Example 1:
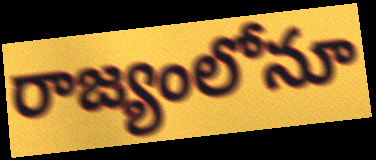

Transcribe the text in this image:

రాజ్యంలోనూ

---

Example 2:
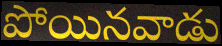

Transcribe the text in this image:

పోయినవాడు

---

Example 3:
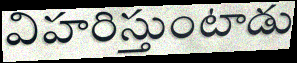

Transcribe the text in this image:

విహరిస్తుంటాడు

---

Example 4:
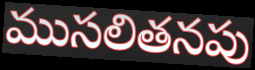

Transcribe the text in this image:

ముసలితనపు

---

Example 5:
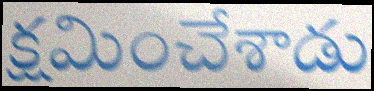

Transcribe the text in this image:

క్షమించేశాడు